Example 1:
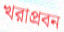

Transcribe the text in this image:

খরাপ্রবন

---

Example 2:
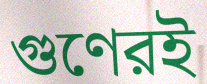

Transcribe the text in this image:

গুণেরই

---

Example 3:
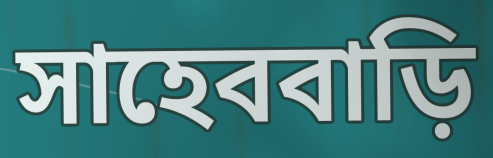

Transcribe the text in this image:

সাহেববাড়ি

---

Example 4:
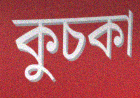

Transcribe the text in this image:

কুচকা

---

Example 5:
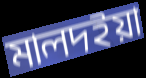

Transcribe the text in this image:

মালদইয়া